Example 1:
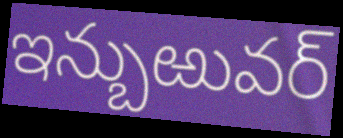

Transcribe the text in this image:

ఇన్బుఱువర్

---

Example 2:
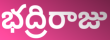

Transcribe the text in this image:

భద్రిరాజు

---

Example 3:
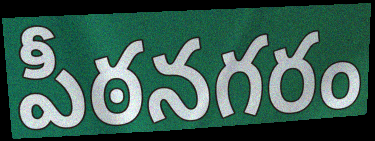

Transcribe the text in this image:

పీఠనగరం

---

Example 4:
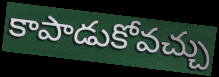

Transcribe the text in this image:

కాపాడుకోవచ్చు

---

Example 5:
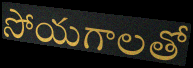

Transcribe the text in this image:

సోయగాలతో